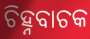
ଚିହ୍ନବାଚକ